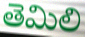
తెమిలి